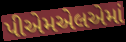
પીએમએલએમાં